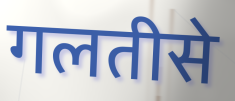
गलतीसे